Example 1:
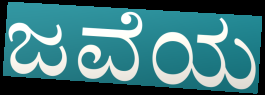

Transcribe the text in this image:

ಜವೆಯ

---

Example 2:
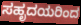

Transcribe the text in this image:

ಸಹೃದಯರಿಂದ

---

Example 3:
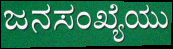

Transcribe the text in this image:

ಜನಸಂಖ್ಯೆಯು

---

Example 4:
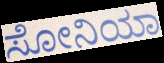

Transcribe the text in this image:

ಸೋನಿಯಾ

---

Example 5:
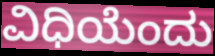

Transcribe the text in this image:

ವಿಧಿಯೆಂದು